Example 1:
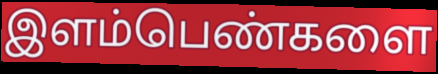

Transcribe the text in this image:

இளம்பெண்களை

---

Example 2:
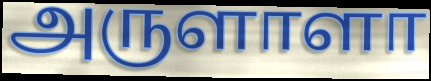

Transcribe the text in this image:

அருளாளா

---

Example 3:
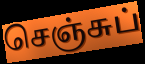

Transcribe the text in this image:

செஞ்சுப்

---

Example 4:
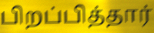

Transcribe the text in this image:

பிறப்பித்தார்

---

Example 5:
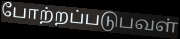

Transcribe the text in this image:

போற்றப்படுபவள்